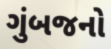
ગુંબજનો